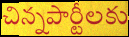
చిన్నపార్టీలకు